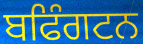
ਬਫਿੰਗਟਨ